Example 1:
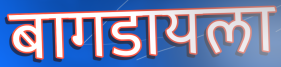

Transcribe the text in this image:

बागडायला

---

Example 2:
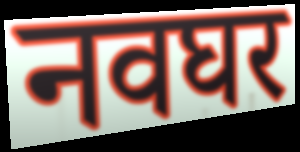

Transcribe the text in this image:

नवघर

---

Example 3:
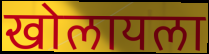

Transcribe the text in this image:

खोलायला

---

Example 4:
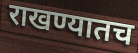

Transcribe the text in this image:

राखण्यातच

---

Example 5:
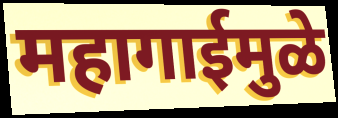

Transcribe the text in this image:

महागाईमुळे